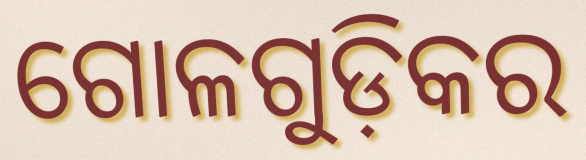
ଗୋଳଗୁଡ଼ିକର